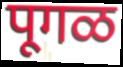
पूगळ